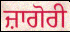
ਜ਼ਾਗੋਰੀ